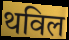
थविल